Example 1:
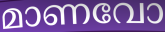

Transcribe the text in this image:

മാണവോ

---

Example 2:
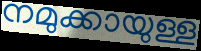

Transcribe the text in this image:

നമുക്കായുള്ള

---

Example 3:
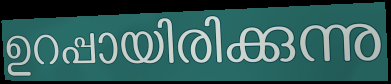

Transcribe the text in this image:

ഉറപ്പായിരിക്കുന്നു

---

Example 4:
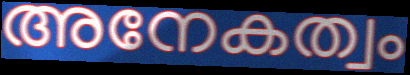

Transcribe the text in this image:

അനേകത്വം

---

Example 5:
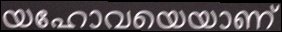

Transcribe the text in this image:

യഹോവയെയാണ്